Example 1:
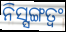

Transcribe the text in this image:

ନିସ୍ସଙ୍ଗତ୍ୱଂ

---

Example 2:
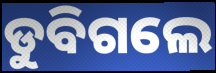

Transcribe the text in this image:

ଡୁବିଗଲେ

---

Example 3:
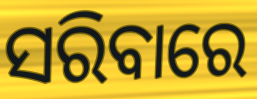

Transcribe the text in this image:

ସରିବାରେ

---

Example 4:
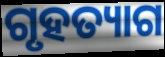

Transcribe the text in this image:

ଗୃହତ୍ୟାଗ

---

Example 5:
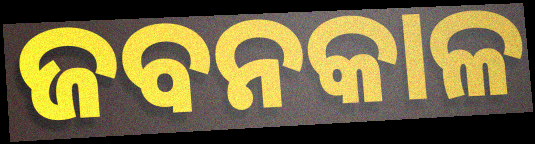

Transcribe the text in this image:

ଜବନକାଳ